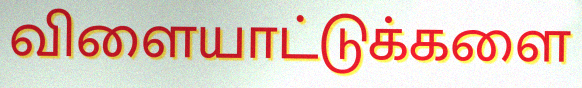
விளையாட்டுக்களை